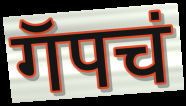
गॅपचं